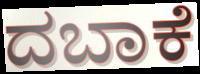
ದಬಾಕೆ